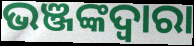
ଭଞ୍ଜଙ୍କଦ୍ୱାରା